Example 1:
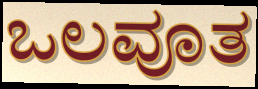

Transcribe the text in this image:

ಒಲವೂತ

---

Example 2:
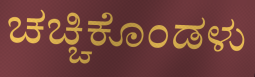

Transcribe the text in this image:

ಚಚ್ಚಿಕೊಂಡಳು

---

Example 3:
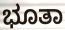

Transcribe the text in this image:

ಭೂತಾ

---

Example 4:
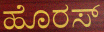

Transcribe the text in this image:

ಹೊರಸ್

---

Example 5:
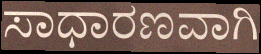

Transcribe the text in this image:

ಸಾಧಾರಣವಾಗಿ